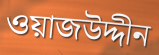
ওয়াজউদ্দীন